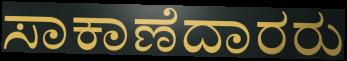
ಸಾಕಾಣೆದಾರರು